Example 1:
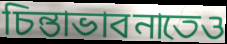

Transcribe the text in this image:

চিন্তাভাবনাতেও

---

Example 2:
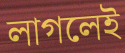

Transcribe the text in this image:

লাগলেই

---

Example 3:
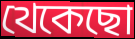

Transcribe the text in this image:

থেকেছো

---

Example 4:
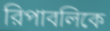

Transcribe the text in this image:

রিপাবলিকে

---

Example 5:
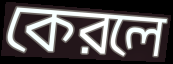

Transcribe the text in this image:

কেরলে